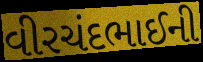
વીરચંદભાઈની